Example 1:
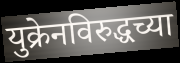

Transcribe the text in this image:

युक्रेनविरुद्धच्या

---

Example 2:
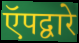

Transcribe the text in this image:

ऍपद्वारे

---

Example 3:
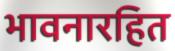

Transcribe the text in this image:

भावनारहित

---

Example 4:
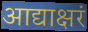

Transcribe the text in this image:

आद्याक्षरं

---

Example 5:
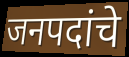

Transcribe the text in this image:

जनपदांचे